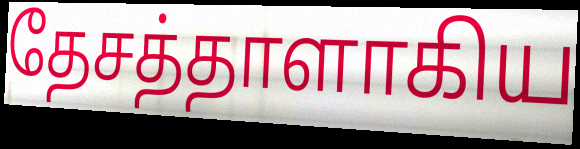
தேசத்தாளாகிய